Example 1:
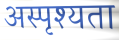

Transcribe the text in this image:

अस्पृश्यता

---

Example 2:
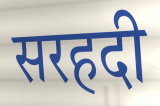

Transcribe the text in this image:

सरहदी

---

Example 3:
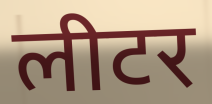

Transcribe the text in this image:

लीटर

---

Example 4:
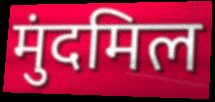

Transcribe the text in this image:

मुंदमिल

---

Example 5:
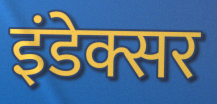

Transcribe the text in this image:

इंडेक्सर